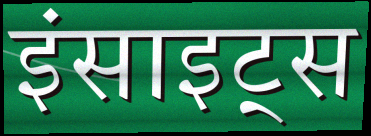
इंसाइट्स